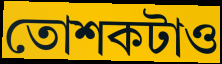
তোশকটাও